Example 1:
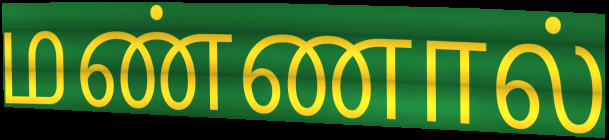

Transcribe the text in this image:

மண்ணால்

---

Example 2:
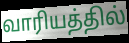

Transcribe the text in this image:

வாரியத்தில்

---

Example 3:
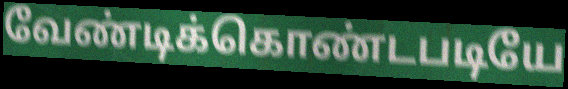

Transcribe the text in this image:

வேண்டிக்கொண்டபடியே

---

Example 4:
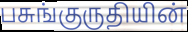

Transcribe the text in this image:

பசுங்குருதியின்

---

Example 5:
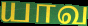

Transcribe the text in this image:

யாவ